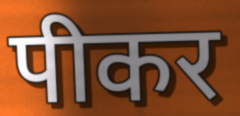
पीकर